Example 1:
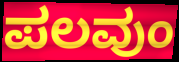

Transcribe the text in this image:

ಪಲವುಂ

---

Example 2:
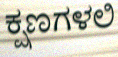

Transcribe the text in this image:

ಕ್ಷಣಗಳಲಿ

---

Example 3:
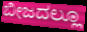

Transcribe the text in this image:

ಬೀಜದಲ್ಲೂ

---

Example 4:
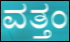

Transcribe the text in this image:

ವತ್ತಂ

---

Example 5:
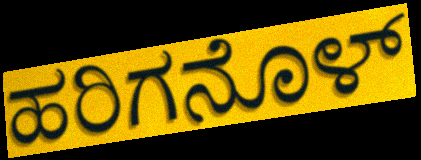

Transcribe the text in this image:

ಹರಿಗನೊಳ್